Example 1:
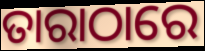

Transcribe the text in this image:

ତାରାଠାରେ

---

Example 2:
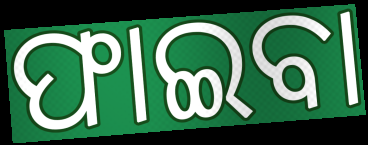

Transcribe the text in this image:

ଫାଇବା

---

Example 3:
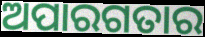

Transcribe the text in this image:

ଅପାରଗତାର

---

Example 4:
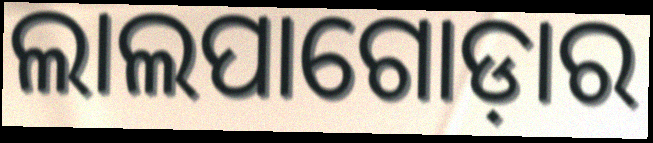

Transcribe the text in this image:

ଲାଲପାଗୋଡ଼ାର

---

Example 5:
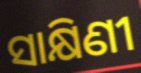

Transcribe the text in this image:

ସାକ୍ଷିଣୀ